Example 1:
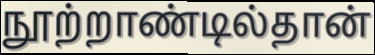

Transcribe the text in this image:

நூற்றாண்டில்தான்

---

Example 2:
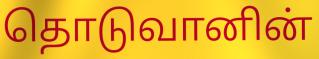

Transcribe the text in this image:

தொடுவானின்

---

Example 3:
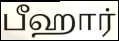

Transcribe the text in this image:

பீஹார்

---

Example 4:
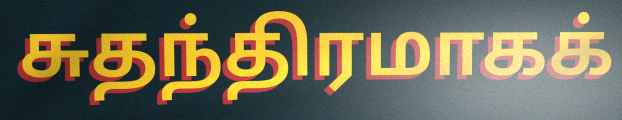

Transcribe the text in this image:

சுதந்திரமாகக்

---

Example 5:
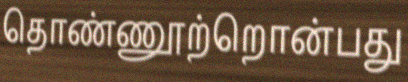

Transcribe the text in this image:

தொண்ணூற்றொன்பது